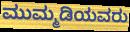
ಮುಮ್ಮಡಿಯವರು